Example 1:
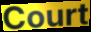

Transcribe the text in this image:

Court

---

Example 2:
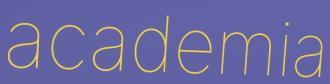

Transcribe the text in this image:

academia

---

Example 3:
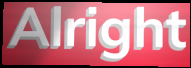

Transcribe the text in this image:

Alright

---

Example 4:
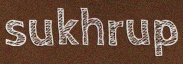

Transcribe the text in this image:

sukhrup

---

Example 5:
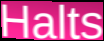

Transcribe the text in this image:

Halts